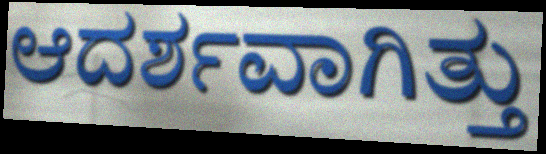
ಆದರ್ಶವಾಗಿತ್ತು